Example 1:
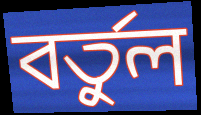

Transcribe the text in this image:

বর্তুল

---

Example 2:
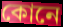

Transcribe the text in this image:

কোনে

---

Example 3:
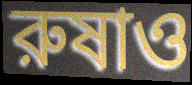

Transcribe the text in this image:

রুষাও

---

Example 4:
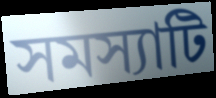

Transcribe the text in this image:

সমস্যাটি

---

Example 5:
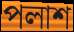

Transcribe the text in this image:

পলাশ